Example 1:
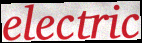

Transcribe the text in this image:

electric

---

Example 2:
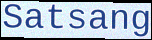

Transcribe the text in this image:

Satsang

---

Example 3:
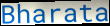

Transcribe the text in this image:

Bharata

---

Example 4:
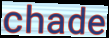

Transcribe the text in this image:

chade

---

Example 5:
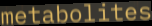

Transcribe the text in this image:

metabolites